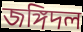
জঙ্গিদল